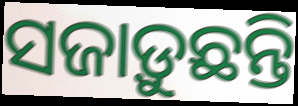
ସଜାଡ଼ୁଛନ୍ତି